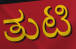
ತುಟಿ